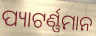
ପ୍ୟାଟର୍ଣ୍ଣମାନ